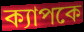
ক্যাপকে